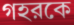
গহরকে